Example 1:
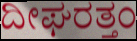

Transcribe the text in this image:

ದೀಘರತ್ತಂ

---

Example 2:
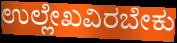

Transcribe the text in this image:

ಉಲ್ಲೇಖವಿರಬೇಕು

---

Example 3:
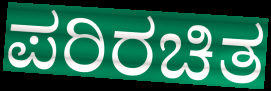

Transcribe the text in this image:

ಪರಿರಚಿತ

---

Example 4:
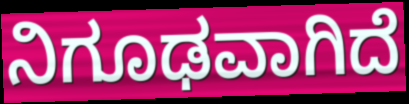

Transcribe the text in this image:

ನಿಗೂಢವಾಗಿದೆ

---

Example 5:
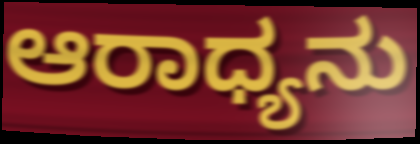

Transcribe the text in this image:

ಆರಾಧ್ಯನು